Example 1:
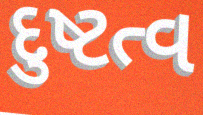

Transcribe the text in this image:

દુષ્ટત્વ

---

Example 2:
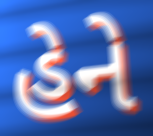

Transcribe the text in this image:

હેને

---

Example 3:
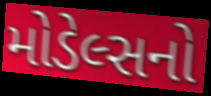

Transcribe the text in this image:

મોડેલ્સનો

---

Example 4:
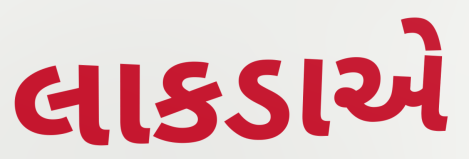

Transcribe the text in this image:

લાકડાએ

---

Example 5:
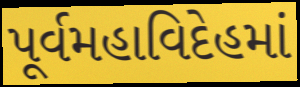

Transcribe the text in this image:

પૂર્વમહાવિદેહમાં